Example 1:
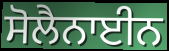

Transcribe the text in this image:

ਸੋਲੈਨਾਈਨ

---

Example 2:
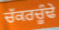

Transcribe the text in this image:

ਚੱਕਰਚੂੰਢੇ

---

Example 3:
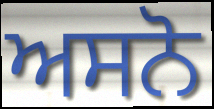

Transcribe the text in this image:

ਅਸਨੋ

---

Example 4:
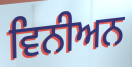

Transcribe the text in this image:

ਵਿਨੀਅਨ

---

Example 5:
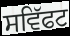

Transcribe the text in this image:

ਸਵਿੱਫਟ